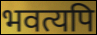
भवत्यपि